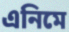
এনিমে